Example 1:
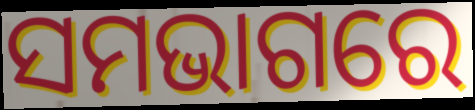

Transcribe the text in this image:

ସମଭାଗରେ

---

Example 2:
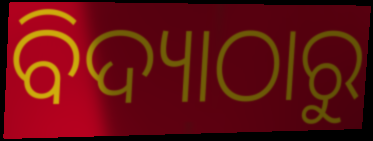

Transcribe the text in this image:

ବିଦ୍ୟାଠାରୁ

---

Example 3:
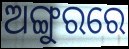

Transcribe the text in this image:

ଅଙ୍ଗୁରରେ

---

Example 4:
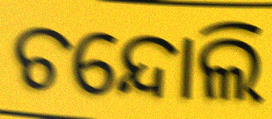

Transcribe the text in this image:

ଚନ୍ଦୋଲି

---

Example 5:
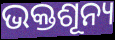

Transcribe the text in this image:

ଭକ୍ତଶୂନ୍ୟ